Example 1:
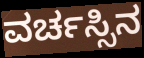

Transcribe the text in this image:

ವರ್ಚಸ್ಸಿನ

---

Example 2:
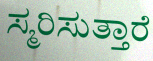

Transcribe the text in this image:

ಸ್ಮರಿಸುತ್ತಾರೆ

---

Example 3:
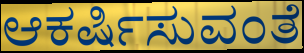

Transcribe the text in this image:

ಆಕರ್ಷಿಸುವಂತೆ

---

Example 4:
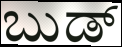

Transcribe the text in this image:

ಬುಡ್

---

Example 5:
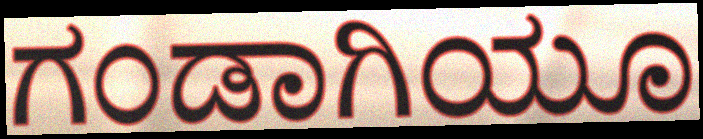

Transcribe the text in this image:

ಗಂಡಾಗಿಯೂ